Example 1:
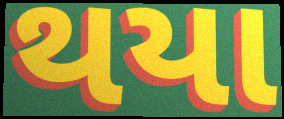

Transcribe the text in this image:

થયા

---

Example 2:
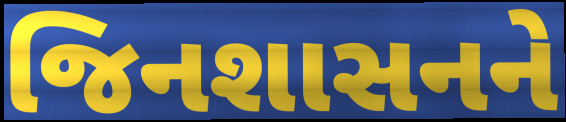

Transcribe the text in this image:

જિનશાસનને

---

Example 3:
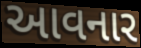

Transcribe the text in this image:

આવનાર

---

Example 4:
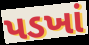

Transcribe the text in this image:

પડખાં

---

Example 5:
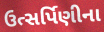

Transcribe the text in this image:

ઉત્સર્પિણીના